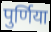
पुर्णिया